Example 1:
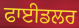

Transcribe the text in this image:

ਫਾਈਡਲਰ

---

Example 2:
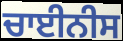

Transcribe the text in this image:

ਚਾਈਨੀਸ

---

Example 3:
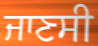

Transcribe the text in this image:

ਜਾਣਸੀ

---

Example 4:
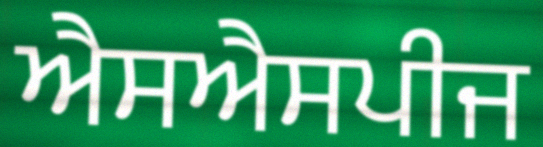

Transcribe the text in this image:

ਐਸਐਸਪੀਜ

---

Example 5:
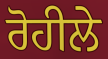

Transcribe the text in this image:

ਰੋਹੀਲੇ